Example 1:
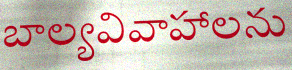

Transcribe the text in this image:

బాల్యవివాహాలను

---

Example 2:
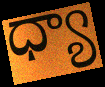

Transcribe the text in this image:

ధ్యా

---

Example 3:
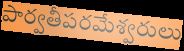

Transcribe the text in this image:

పార్వతీపరమేశ్వరులు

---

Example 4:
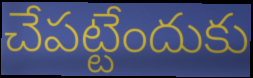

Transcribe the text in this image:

చేపట్టేందుకు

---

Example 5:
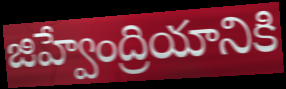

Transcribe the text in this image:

జిహ్వేంద్రియానికి